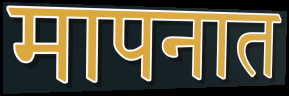
मापनात